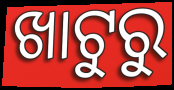
ଖାଟୁରୁ